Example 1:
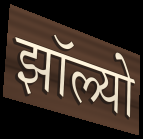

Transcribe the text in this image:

झॉल्यो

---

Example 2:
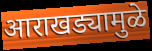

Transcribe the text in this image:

आराखड्यामुळे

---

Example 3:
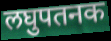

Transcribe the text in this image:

लघुपतनक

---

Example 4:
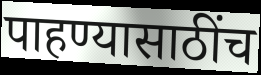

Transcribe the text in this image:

पाहण्यासाठींच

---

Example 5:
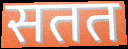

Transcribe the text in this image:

सतत